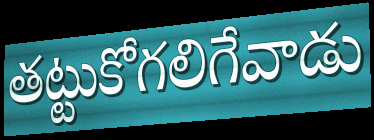
తట్టుకోగలిగేవాడు